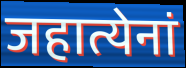
जहात्येनां